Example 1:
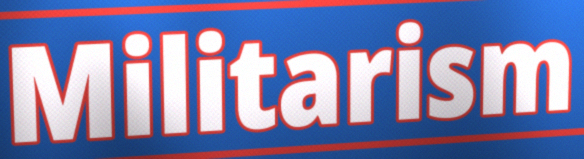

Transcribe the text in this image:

Militarism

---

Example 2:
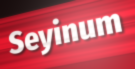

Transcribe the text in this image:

Seyinum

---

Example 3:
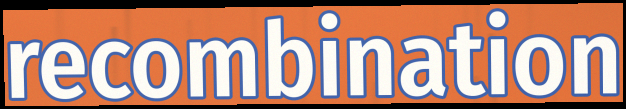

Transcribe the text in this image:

recombination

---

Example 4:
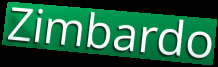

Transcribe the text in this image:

Zimbardo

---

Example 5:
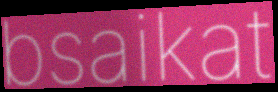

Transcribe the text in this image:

bsaikat